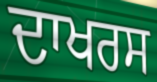
ਦਾਖਰਸ